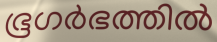
ഭൂഗർഭത്തിൽ